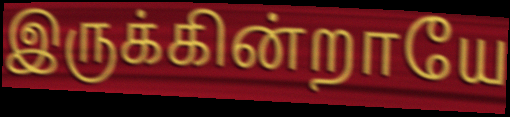
இருக்கின்றாயே